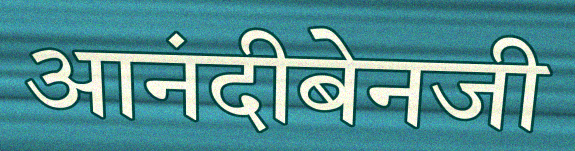
आनंदीबेनजी